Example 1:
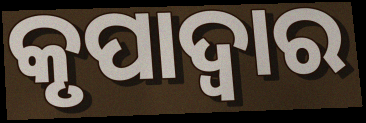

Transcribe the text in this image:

କୃପାଦ୍ଵାର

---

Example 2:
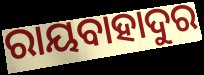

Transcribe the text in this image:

ରାୟବାହାଦୁର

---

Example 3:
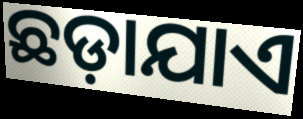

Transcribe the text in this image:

ଛଡ଼ାଯାଏ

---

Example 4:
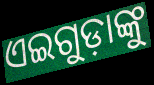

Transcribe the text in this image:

ଏଇଗୁଡ଼ାଙ୍କୁ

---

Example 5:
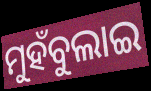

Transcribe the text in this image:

ମୁହଁବୁଲାଇ